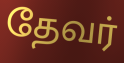
தேவர்